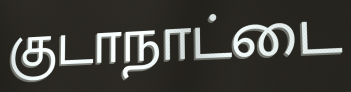
குடாநாட்டை